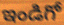
ఇండిగో